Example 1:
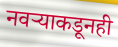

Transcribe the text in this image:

नवऱ्याकडूनही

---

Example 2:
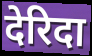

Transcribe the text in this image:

देरिदा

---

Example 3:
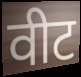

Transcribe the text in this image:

वीट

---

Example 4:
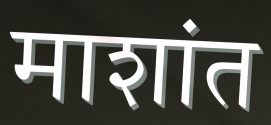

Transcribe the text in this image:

माशांत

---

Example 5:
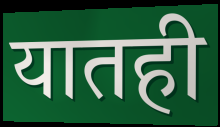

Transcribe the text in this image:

यातही